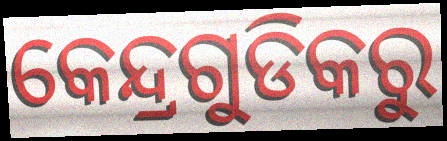
କେନ୍ଦ୍ରଗୁଡିକରୁ